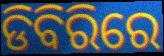
ଡିବିରିରେ